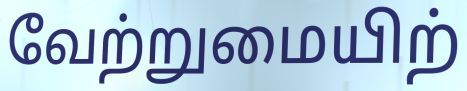
வேற்றுமையிற்